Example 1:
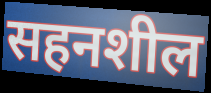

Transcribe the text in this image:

सहनशील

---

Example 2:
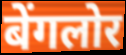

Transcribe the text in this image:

बेंगलोर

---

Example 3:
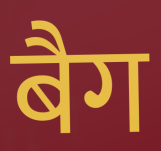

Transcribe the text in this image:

बैग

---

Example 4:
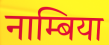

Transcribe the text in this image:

नाम्बिया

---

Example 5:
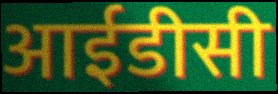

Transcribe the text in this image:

आईडीसी